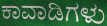
ಕಾವಾಡಿಗಳು